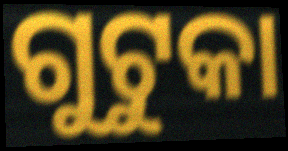
ଗୁଟୁକା